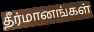
தீர்மானங்கள்